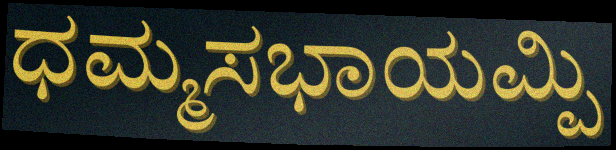
ಧಮ್ಮಸಭಾಯಮ್ಪಿ